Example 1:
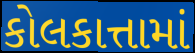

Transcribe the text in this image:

કોલકાત્તામાં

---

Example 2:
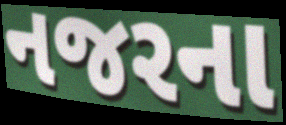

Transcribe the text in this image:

નજરના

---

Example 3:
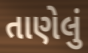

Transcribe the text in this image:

તાણેલું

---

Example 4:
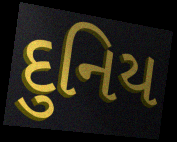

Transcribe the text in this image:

દુનિય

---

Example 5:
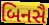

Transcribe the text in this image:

બિનસૈ